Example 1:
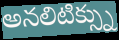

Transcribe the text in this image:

అనలిటిక్స్ను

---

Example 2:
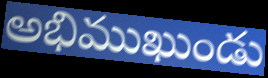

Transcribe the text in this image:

అభిముఖుండు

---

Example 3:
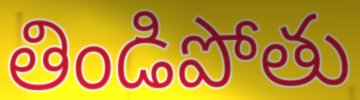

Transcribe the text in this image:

తిండిపోతు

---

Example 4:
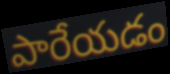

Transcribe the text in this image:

పారేయడం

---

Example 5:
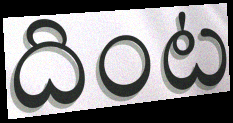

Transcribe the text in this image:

దింట